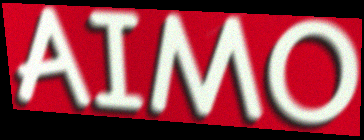
AIMO